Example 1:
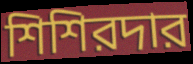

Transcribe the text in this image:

শিশিরদার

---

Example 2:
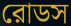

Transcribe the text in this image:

রোডস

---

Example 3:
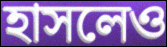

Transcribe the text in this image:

হাসলেও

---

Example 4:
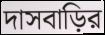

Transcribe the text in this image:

দাসবাড়ির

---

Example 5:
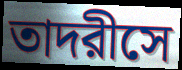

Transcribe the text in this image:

তাদরীসে